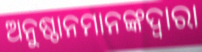
ଅନୁଷ୍ଠାନମାନଙ୍କଦ୍ଵାରା